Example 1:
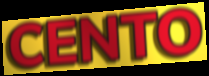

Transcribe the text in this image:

CENTO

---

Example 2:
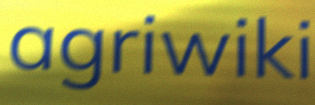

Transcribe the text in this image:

agriwiki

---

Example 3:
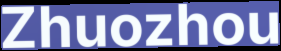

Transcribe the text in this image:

Zhuozhou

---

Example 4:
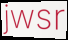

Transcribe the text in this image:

jwsr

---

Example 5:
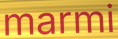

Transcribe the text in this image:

marmi